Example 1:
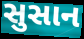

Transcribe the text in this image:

સુસાન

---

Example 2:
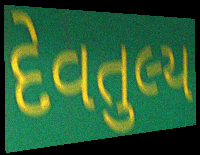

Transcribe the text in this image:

દેવતુલ્ય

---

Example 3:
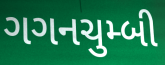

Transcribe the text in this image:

ગગનચુમ્બી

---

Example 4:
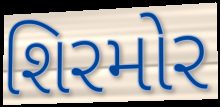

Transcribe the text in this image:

શિરમોર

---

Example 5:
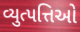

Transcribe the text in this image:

વ્યુત્પત્તિઓ